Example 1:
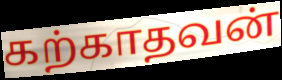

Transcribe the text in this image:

கற்காதவன்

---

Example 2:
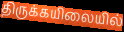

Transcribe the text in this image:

திருக்கயிலையில்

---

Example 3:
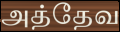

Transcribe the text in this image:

அத்தேவ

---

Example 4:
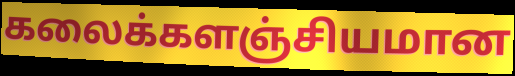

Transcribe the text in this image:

கலைக்களஞ்சியமான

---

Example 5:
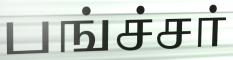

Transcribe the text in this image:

பங்ச்சர்